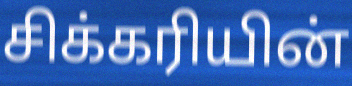
சிக்கரியின்